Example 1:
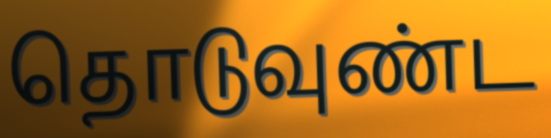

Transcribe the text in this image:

தொடுவுண்ட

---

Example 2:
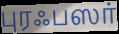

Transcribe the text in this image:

புரஃபஸர்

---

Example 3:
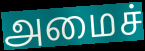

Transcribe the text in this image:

அமைச்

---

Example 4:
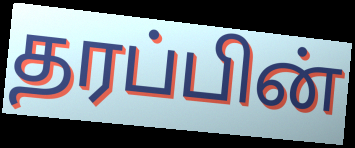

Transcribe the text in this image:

தரப்பின்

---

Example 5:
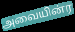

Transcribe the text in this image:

அவையின்ர